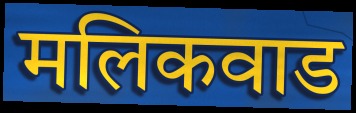
मलिकवाड